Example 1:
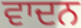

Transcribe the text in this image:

ਵਾਦਨ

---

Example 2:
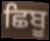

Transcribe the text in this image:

ਛਿਬੂ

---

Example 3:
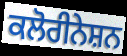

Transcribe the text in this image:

ਕਲੋਰੀਨੇਸ਼ਨ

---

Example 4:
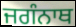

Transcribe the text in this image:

ਜਗੰਨਾਥ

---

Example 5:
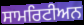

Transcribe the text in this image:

ਸਾਮਰਿਟੀਅਨ